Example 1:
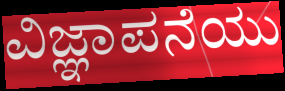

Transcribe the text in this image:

ವಿಜ್ಞಾಪನೆಯು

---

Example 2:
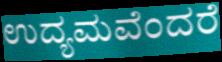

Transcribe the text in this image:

ಉದ್ಯಮವೆಂದರೆ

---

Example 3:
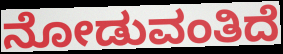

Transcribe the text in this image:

ನೋಡುವಂತಿದೆ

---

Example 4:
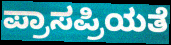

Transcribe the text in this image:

ಪ್ರಾಸಪ್ರಿಯತೆ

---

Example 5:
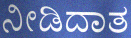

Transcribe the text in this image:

ನೀಡಿದಾತ